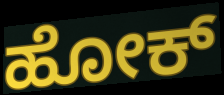
ಹೋಕ್